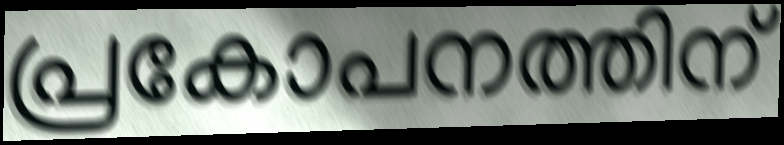
പ്രകോപനത്തിന്